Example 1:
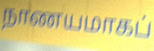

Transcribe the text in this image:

நாணயமாகப்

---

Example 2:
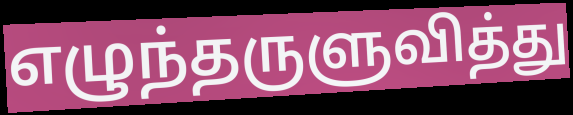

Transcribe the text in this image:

எழுந்தருளுவித்து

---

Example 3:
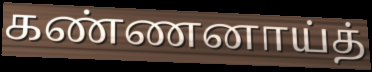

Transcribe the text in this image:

கண்ணனாய்த்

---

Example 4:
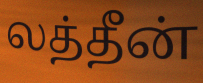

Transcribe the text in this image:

லத்தீன்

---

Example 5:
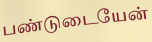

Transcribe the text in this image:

பண்டுடையேன்